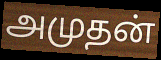
அமுதன்